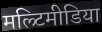
मल्टिमीडिया